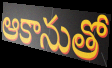
ఆకానుతో